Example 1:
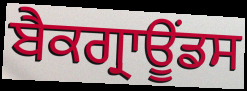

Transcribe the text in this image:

ਬੈਕਗ੍ਰਾਊਂਡਸ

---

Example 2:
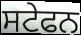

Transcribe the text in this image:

ਸਟੇਫਨ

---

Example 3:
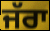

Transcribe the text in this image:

ਜੱਰਾ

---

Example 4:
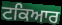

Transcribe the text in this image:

ਟਕਿਆਰ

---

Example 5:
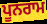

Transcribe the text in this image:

ਪੂਨਰਾਮ